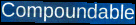
Compoundable